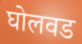
घोलवड